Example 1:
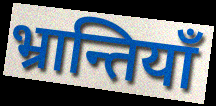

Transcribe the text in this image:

भ्रान्तियाँ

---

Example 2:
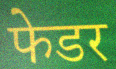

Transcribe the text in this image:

फेडर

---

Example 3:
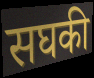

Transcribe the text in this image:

सघकी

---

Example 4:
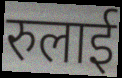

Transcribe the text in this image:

रुलाई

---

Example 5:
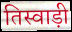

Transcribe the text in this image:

तिस्वाड़ी